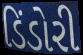
ડિંડોરી